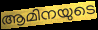
ആമിനയുടെ